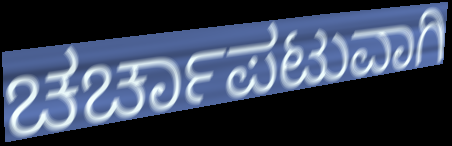
ಚರ್ಚಾಪಟುವಾಗಿ